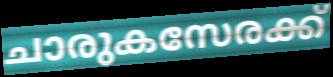
ചാരുകസേരക്ക്